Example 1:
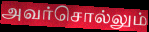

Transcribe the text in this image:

அவர்சொல்லும்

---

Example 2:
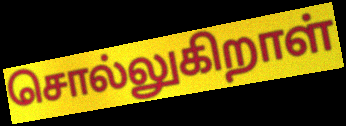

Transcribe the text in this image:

சொல்லுகிறாள்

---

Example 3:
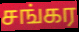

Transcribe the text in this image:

சங்கர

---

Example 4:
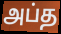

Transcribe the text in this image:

அப்த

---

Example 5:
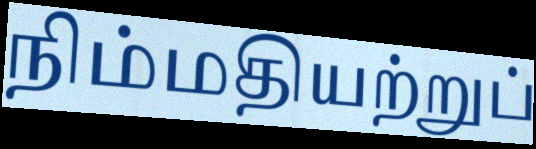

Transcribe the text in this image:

நிம்மதியற்றுப்